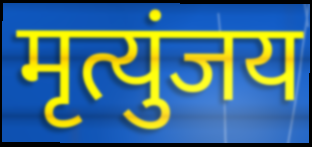
मृत्युंजय